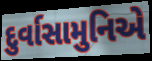
દુર્વાસામુનિએ